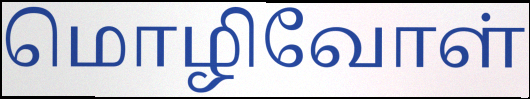
மொழிவோள்